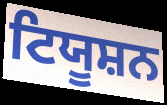
ਟਿਯੂਸ਼ਨ